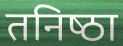
तनिष्‍ठा